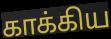
காக்கிய